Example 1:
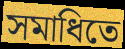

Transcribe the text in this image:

সমাধিতে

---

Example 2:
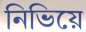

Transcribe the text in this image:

নিভিয়ে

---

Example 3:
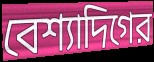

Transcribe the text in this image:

বেশ্যাদিগের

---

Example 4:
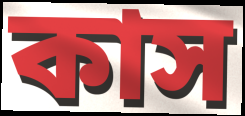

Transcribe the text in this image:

কাস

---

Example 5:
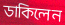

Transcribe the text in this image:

ডাকিলেন